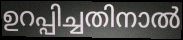
ഉറപ്പിച്ചതിനാൽ